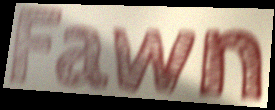
Fawn